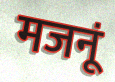
मजनूं